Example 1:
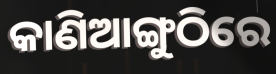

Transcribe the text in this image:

କାଣିଆଙ୍ଗୁଠିରେ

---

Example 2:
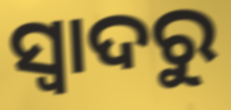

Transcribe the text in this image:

ସ୍ୱାଦରୁ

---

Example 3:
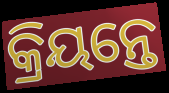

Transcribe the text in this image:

କ୍ରିୟନ୍ତେ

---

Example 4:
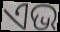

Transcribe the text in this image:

ଏଭ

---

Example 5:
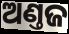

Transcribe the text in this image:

ଅଣ୍ତଜ